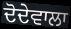
ਦੋਦੇਵਾਲਾ